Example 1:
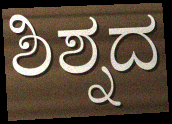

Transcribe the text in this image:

ಶಿಶ್ನದ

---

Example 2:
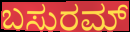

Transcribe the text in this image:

ಬಸುರಮ್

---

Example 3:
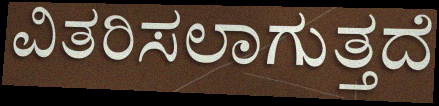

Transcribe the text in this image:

ವಿತರಿಸಲಾಗುತ್ತದೆ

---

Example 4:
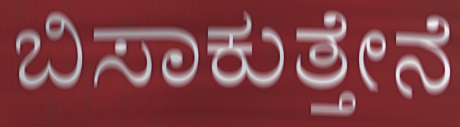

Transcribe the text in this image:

ಬಿಸಾಕುತ್ತೇನೆ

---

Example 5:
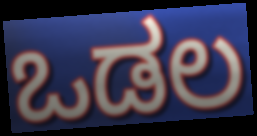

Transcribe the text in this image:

ಒಡಲ